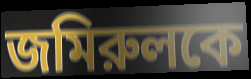
জমিরুলকে